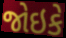
જોઇકે